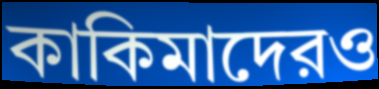
কাকিমাদেরও